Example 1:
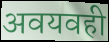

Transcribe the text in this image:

अवयवही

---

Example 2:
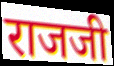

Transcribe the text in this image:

राजजी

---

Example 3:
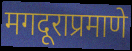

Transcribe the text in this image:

मगदूराप्रमाणे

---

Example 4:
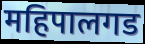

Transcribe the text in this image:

महिपालगड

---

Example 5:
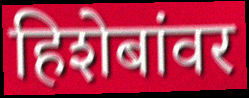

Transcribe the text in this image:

हिशेबांवर